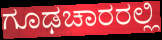
ಗೂಢಚಾರರಲ್ಲಿ